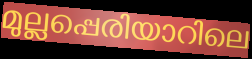
മുല്ലപ്പെരിയാറിലെ